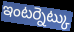
ఇంటర్నెట్కు